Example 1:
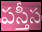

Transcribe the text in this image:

పస్తీస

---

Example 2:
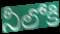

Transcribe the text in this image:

నీలోకి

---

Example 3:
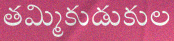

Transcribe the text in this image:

తమ్మికుడుకుల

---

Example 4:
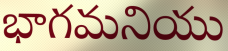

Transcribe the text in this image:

భాగమనియు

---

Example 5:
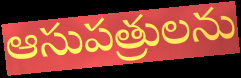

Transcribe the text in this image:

ఆసుపత్రులను